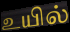
உயில்